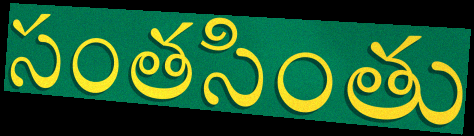
సంతసింతు